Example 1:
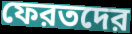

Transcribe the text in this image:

ফেরতদের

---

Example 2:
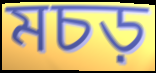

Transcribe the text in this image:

মচড়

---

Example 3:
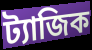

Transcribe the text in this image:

ট্যাজিক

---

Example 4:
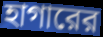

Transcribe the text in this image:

হাগারের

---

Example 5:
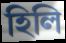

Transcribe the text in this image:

হিলি